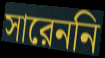
সারেননি